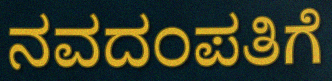
ನವದಂಪತಿಗೆ